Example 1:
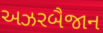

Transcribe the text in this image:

અઝરબૈજાન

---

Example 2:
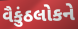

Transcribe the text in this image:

વૈકુંઠલોકને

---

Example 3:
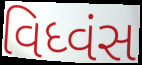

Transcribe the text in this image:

વિધ્વંસ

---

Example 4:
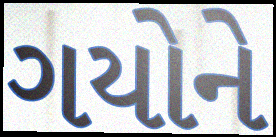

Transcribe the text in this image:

ગયોને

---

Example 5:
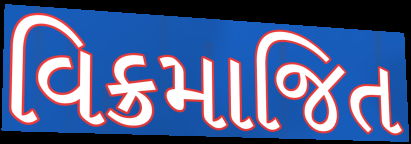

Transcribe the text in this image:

વિક્રમાજિત